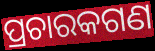
ପ୍ରଚାରକଗଣ